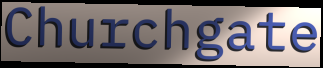
Churchgate